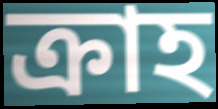
ক্রাহ